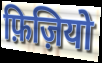
फ़िज़ियो